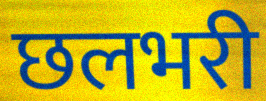
छलभरी